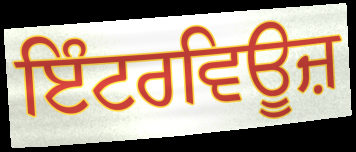
ਇੰਟਰਵਿਊਜ਼